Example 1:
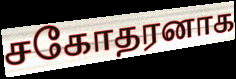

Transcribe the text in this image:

சகோதரனாக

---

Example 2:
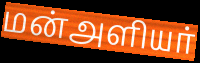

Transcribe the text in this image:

மன்அளியர்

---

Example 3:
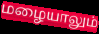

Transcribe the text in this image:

மழையாலும்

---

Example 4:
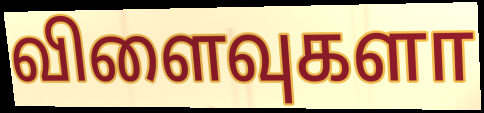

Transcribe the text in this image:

விளைவுகளா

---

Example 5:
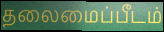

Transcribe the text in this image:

தலைமைப்பீடம்